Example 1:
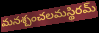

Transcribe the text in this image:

మనశ్చంచలమస్థిరమ్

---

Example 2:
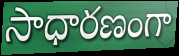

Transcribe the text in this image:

సాధారణంగా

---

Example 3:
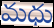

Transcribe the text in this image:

మధు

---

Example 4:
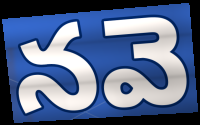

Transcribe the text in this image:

నవె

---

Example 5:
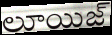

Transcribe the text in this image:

లూయిజ్